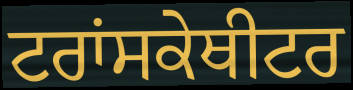
ਟਰਾਂਸਕੇਥੀਟਰ